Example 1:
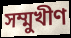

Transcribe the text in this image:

সম্মুখীণ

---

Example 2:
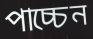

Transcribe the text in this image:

পাচ্চেন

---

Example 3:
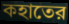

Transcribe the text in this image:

কহাতের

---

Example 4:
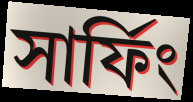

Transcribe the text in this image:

সার্ফিং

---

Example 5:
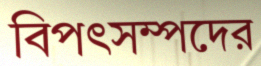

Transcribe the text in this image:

বিপৎসম্পদের